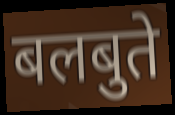
बलबुते